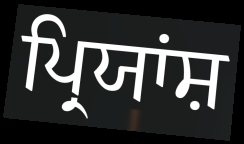
ਪ੍ਰਿਯਾਂਸ਼